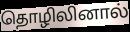
தொழிலினால்